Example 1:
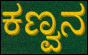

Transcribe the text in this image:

ಕಣ್ವನ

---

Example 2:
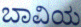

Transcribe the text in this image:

ಬಾವಿಯ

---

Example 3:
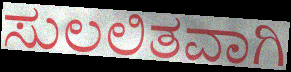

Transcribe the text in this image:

ಸುಲಲಿತವಾಗಿ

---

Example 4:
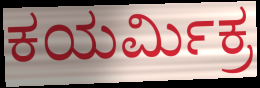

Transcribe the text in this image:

ಕಯರ್ಮಿಕ್ರ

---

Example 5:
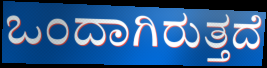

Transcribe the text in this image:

ಒಂದಾಗಿರುತ್ತದೆ